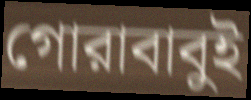
গোরাবাবুই